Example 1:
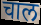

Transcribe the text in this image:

चाल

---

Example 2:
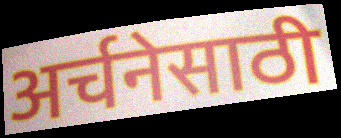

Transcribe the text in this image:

अर्चनेसाठी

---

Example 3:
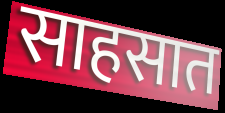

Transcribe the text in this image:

साहसात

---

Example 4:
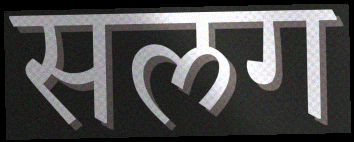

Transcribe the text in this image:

सलग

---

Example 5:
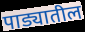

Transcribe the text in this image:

पाड्यातील